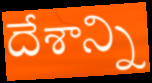
దేశాన్ని